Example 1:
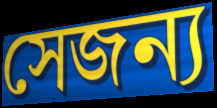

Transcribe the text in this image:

সেজন্য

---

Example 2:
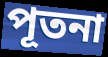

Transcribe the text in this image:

পূতনা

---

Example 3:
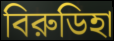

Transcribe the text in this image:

বিরুডিহা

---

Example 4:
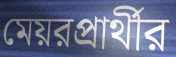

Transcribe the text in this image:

মেয়রপ্রার্থীর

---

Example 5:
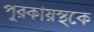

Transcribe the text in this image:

পুরকায়স্থকে